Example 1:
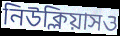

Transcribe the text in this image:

নিউক্লিয়াসও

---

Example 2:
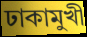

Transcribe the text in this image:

ঢাকামুখী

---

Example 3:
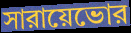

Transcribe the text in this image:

সারায়েভোর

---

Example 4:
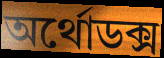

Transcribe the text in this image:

অর্থোডক্স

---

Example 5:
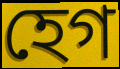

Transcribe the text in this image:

হেগ